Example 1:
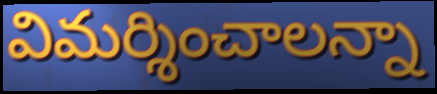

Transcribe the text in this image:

విమర్శించాలన్నా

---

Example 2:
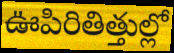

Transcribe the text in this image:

ఊపిరితిత్తుల్లో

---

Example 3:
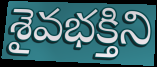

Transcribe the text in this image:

శైవభక్తిని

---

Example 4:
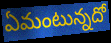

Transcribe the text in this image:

ఏమంటున్నదో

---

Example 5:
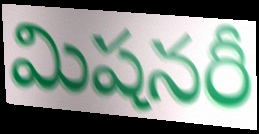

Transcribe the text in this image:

మిషనరీ